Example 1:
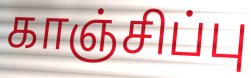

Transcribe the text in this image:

காஞ்சிப்பு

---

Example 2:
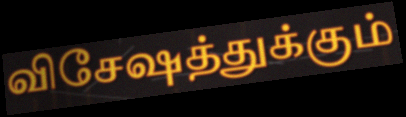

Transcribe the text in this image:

விசேஷத்துக்கும்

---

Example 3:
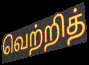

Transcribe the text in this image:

வெற்றித்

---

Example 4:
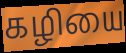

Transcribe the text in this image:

கழியை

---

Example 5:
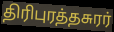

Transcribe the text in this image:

திரிபுரத்தசுரர்